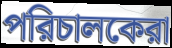
পরিচালকেরা